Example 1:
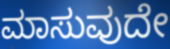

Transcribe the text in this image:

ಮಾಸುವುದೇ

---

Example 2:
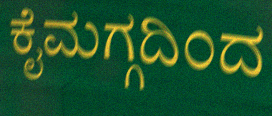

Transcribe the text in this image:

ಕೈಮಗ್ಗದಿಂದ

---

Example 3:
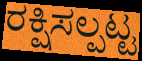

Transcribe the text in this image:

ರಕ್ಷಿಸಲ್ಪಟ್ಟ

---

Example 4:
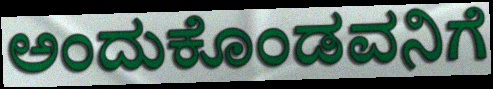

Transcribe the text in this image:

ಅಂದುಕೊಂಡವನಿಗೆ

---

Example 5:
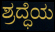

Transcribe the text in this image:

ಶ್ರದ್ಧೆಯ